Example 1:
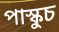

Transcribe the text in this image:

পাস্কুচ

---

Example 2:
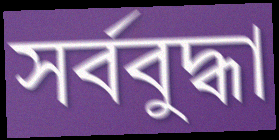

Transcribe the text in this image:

সৰ্ববুদ্ধা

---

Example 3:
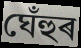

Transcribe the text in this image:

ঘেঁহুৰ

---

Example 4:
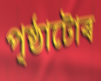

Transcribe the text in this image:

পৃষ্ঠাটোৰ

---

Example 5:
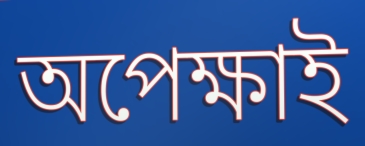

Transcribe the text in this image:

অপেক্ষাই